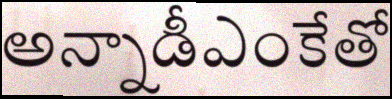
అన్నాడీఎంకేతో